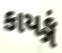
કાયઙ્ગં